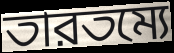
তারতম্যে